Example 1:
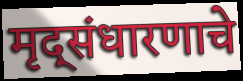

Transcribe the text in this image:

मृद्संधारणाचे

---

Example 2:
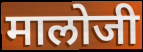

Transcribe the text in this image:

मालोजी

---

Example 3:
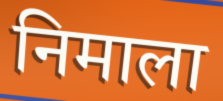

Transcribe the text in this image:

निमाला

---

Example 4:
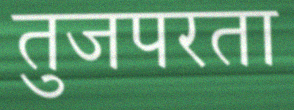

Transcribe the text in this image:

तुजपरता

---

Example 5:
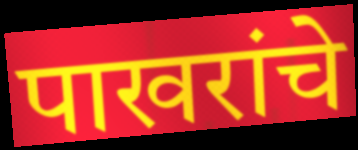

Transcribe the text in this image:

पाखरांचे